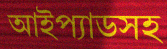
আইপ্যাডসহ